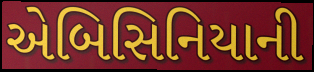
એબિસિનિયાની